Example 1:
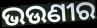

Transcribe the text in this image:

ଭଉଣୀର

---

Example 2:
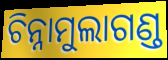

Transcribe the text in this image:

ଚିନ୍ନାମୁଲାଗଣ୍ଡ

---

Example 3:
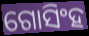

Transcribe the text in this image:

ଗୋସିଂହ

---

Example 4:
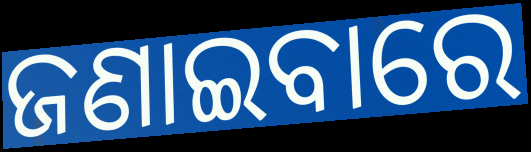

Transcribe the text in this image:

ଜଣାଇବାରେ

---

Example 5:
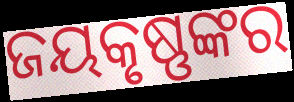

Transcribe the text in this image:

ଜୟକୃଷ୍ଣଙ୍କର